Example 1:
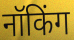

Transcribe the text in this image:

नॉकिंग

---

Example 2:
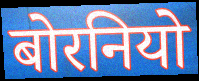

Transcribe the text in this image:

बोरनियो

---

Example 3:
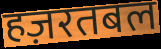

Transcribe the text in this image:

हज़रतबल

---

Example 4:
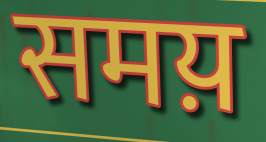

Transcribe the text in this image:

समय़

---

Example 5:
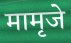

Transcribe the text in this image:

मामृजे